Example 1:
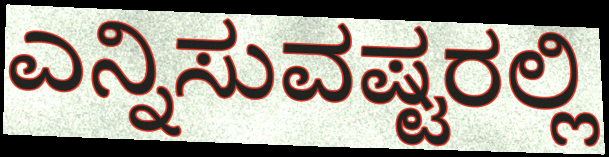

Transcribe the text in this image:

ಎನ್ನಿಸುವಷ್ಟರಲ್ಲಿ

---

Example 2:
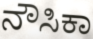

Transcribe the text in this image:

ನೌಸಿಕಾ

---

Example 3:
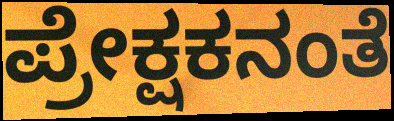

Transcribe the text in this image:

ಪ್ರೇಕ್ಷಕನಂತೆ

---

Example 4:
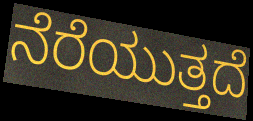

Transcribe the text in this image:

ನೆರೆಯುತ್ತದೆ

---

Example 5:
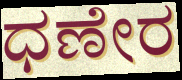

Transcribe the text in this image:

ಧಣೇರ